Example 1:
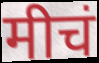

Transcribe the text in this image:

मीचं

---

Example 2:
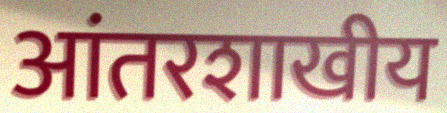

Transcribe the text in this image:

आंतरशाखीय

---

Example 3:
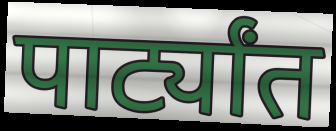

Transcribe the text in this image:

पार्ट्यांत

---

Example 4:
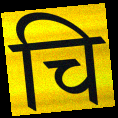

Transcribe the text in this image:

चि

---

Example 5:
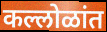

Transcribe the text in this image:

कल्लोळांत